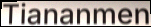
Tiananmen